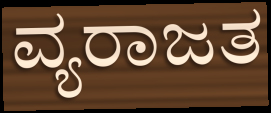
ವ್ಯರಾಜತ